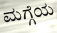
ಮಗ್ಗೆಯ